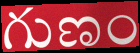
గుణం